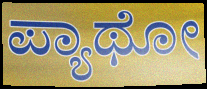
ಪ್ಯಾಥೋ